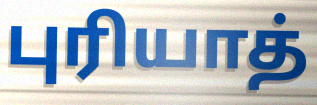
புரியாத்